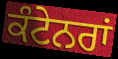
ਕੰਟੇਨਰਾਂ